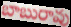
బాబురావు